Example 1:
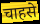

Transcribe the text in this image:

चाहसे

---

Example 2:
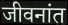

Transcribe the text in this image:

जीवनांत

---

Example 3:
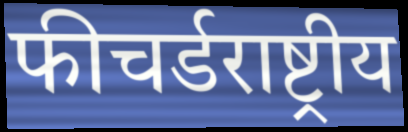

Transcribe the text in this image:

फीचर्डराष्ट्रीय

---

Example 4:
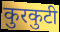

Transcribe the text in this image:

कुरकुटी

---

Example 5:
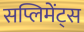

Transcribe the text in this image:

सप्लिमेंट्स